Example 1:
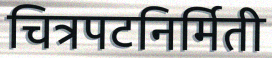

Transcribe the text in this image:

चित्रपटनिर्मिती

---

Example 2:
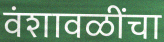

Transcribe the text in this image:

वंशावळींचा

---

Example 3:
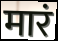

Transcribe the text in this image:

मारं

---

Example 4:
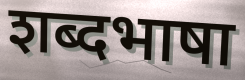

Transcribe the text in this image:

शब्दभाषा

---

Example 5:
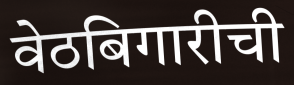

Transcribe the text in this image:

वेठबिगारीची